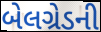
બેલગ્રેડની